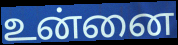
உன்னை